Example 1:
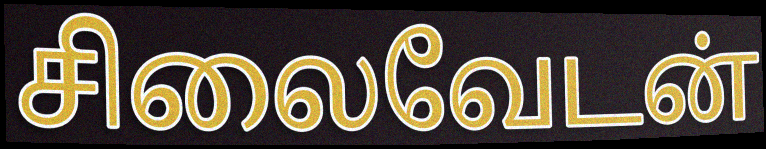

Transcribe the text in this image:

சிலைவேடன்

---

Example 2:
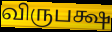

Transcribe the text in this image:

விருபக்ஷ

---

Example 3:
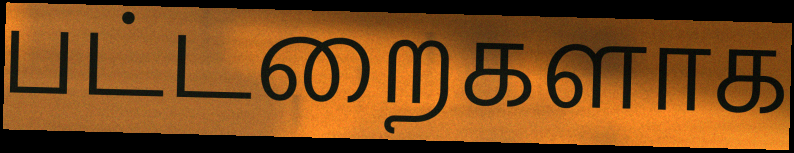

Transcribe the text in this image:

பட்டறைகளாக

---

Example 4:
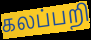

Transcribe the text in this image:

கலப்பறி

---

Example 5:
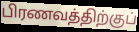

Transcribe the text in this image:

பிரணவத்திற்குப்